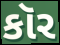
કૉર